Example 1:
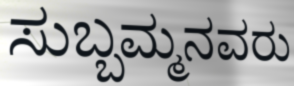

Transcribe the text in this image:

ಸುಬ್ಬಮ್ಮನವರು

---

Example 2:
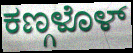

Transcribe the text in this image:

ಕಣ್ಗಳೊಳ್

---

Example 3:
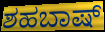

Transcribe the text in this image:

ಶಹಬಾಷ್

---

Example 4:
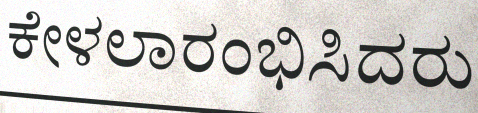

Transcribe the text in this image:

ಕೇಳಲಾರಂಭಿಸಿದರು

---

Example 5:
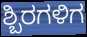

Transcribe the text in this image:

ಶ್ಬಿರಗಳಿಗ